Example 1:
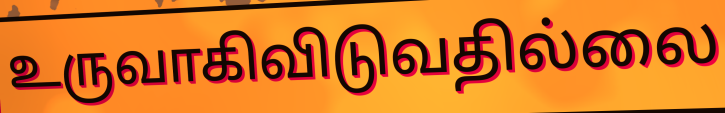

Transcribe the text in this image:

உருவாகிவிடுவதில்லை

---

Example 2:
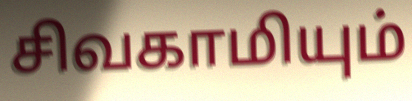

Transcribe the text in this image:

சிவகாமியும்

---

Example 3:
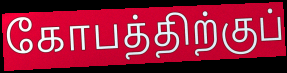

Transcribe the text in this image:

கோபத்திற்குப்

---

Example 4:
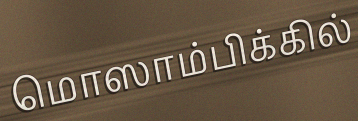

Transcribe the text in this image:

மொஸாம்பிக்கில்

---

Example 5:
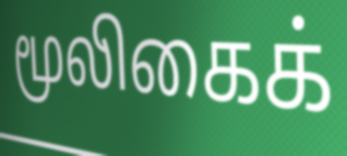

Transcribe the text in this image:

மூலிகைக்